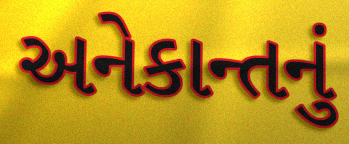
અનેકાન્તનું